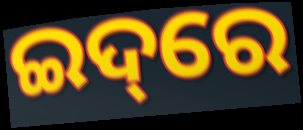
ଇଦ୍‌ରେ